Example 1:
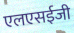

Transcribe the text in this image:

एलएसईजी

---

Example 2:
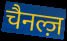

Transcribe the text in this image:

चैनल्ज़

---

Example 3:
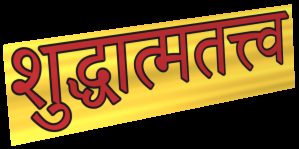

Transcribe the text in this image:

शुद्धात्मतत्त्व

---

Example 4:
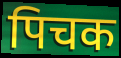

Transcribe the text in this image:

पिचक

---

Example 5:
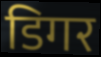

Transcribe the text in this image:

डिगर